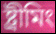
ষ্ট্ৰীমিং